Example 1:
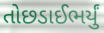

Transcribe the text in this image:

તોછડાઈભર્યું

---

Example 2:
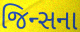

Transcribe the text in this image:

જિન્સના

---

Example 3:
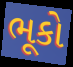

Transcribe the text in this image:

ભૂકો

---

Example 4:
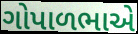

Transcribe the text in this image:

ગોપાળભાએ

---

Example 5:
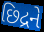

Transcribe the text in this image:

છિદ્રને